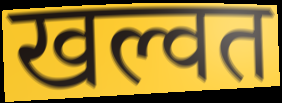
खल्वत